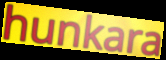
hunkara